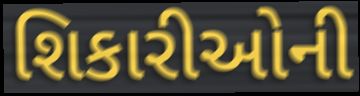
શિકારીઓની